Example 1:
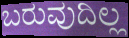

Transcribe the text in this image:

ಬರುವುದಿಲ್ಲ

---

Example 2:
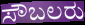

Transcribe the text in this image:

ಸೌಬಲರು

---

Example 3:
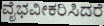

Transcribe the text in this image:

ವೈಭವೀಕರಿಸಿದರೆ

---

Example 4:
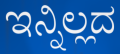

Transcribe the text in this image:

ಇನ್ನಿಲ್ಲದ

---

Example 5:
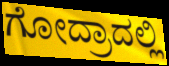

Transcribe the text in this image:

ಗೋದ್ರಾದಲ್ಲಿ